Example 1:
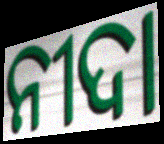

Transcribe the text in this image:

ନୀଦା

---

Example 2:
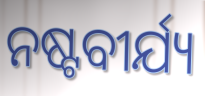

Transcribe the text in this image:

ନଷ୍ଟବୀର୍ଯ୍ୟ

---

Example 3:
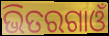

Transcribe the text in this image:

ଭିତରଗାଓଁ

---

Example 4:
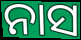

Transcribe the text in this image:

ନାସ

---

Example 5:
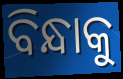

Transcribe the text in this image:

ବିନ୍ଧାକୁ